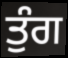
ਤੁੰਗ